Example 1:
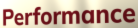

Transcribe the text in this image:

Performance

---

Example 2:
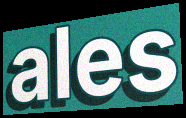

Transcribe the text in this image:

ales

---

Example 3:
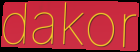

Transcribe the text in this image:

dakor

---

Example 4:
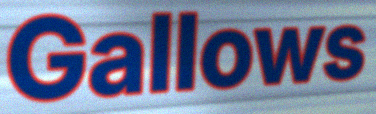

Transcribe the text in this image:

Gallows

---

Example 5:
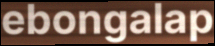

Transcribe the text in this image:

ebongalap